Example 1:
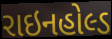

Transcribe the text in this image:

રાઇનહોલ્ડ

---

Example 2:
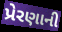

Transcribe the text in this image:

પ્રેરણાની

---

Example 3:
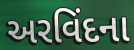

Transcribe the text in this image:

અરવિંદના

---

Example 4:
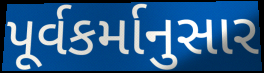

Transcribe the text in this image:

પૂર્વકર્માનુસાર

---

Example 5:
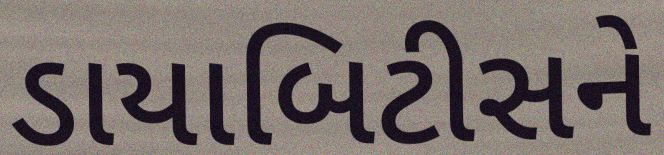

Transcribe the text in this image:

ડાયાબિટીસને